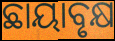
ଛାୟାବୃକ୍ଷ